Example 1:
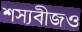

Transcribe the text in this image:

শস্যবীজও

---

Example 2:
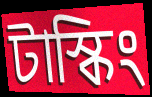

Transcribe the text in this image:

টাস্কিং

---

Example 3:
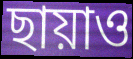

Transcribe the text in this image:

ছায়াও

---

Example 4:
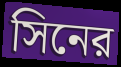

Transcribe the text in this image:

সিনের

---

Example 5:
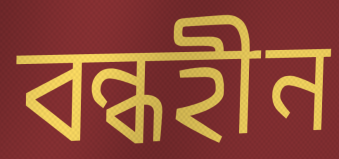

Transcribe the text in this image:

বন্ধহীন